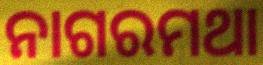
ନାଗରମଥା